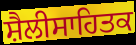
ਸ਼ੈਲੀਸਾਹਿਤਕ